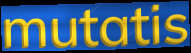
mutatis